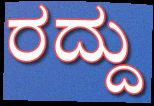
ರದ್ದು